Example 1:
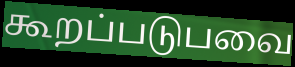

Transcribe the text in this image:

கூறப்படுபவை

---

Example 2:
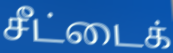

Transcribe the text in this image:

சீட்டைக்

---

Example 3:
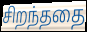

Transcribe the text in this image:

சிறந்ததை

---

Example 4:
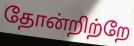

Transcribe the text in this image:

தோன்றிற்றே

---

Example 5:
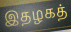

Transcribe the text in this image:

இதழகத்